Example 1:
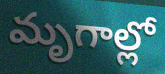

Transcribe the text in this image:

మృగాల్లో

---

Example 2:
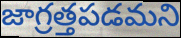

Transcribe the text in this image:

జాగ్రత్తపడమని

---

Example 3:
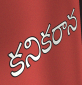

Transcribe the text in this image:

కనికరాన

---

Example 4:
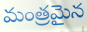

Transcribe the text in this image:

మంత్రమైన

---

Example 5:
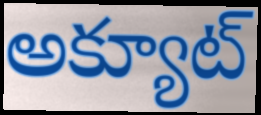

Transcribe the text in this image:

అక్యూట్